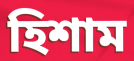
হিশাম